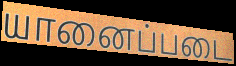
யானைப்படை